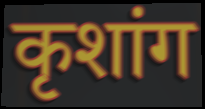
कृशांग